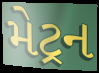
મેટ્રન